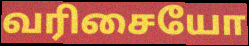
வரிசையோ